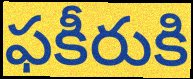
ఫకీరుకి